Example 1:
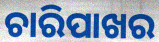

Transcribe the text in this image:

ଚାରିପାଖର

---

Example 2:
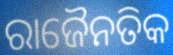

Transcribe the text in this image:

ରାଜୈନତିକ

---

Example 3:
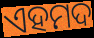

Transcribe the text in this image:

ଏହମଦ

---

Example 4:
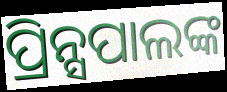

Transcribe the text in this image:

ପ୍ରିନ୍ସପାଲଙ୍କ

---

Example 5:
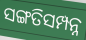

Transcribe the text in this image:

ସଙ୍ଗତିସମ୍ପନ୍ନ